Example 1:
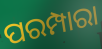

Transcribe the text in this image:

ପରମ୍ପାରା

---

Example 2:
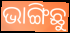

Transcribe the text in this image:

ଭାଙ୍ଗିଛୁ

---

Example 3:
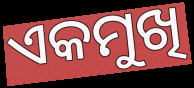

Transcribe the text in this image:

ଏକମୁଖି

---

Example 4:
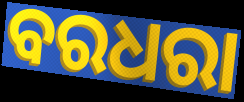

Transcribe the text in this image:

ବରଧରା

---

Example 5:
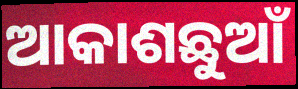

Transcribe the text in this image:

ଆକାଶଛୁଆଁ